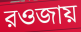
রওজায়